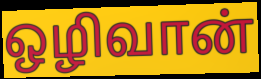
ஒழிவான்